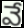
వే